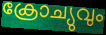
ക്രോച്യുവും